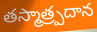
తస్మాత్ర్పదాన